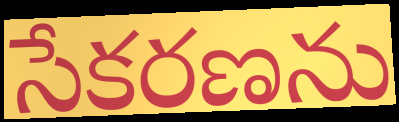
సేకరణను